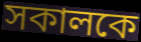
সকালকে